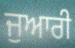
ਜੁਆਰੀ